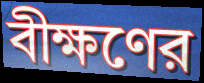
বীক্ষণের